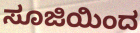
ಸೂಜಿಯಿಂದ